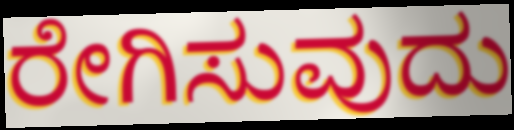
ರೇಗಿಸುವುದು